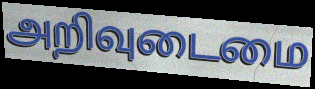
அறிவுடைமை